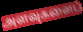
அளவுகளைப்